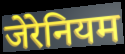
जेरेनियम